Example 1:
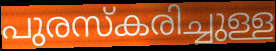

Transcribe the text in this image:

പുരസ്കരിച്ചുള്ള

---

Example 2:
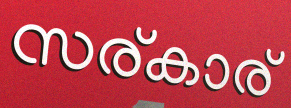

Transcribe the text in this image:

സര്കാര്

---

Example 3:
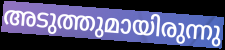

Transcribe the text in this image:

അടുത്തുമായിരുന്നു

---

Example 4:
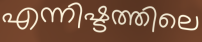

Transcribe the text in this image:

എന്നിഷ്ടത്തിലെ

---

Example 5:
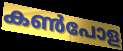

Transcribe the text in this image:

കൺപോള